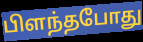
பிளந்தபோது